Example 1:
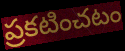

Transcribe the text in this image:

ప్రకటించటం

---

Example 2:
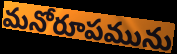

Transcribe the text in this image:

మనోరూపమును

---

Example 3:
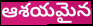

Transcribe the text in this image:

ఆశయమైన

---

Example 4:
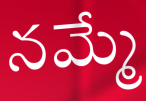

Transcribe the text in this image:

నమ్మే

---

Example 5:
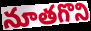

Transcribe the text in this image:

నూతగొని